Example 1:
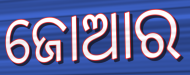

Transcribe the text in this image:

ଜୋଆର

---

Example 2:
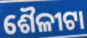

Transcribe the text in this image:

ଶୈଳୀଟା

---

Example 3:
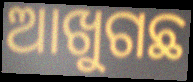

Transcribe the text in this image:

ଆଖୁଗଛ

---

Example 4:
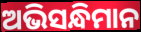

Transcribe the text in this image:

ଅଭିସନ୍ଧିମାନ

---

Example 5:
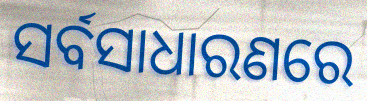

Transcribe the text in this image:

ସର୍ବସାଧାରଣରେ